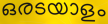
ഒരടയാളം